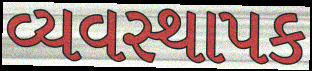
વ્યવસ્થાપક